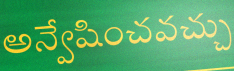
అన్వేషించవచ్చు